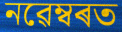
নৱেম্বৰত